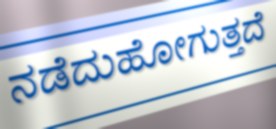
ನಡೆದುಹೋಗುತ್ತದೆ